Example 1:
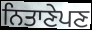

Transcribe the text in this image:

ਨਿਤਾਣੇਪਣ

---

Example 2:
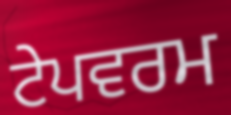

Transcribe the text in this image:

ਟੇਪਵਰਮ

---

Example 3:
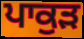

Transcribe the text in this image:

ਪਾਕੁੜ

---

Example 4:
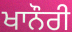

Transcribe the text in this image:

ਖਾਨੌਰੀ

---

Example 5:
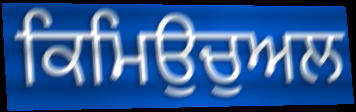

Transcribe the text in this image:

ਕਿਮਿਉਚੁਅਲ